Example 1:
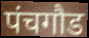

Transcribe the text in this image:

पंचगौड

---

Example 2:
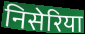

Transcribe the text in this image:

निसेरिया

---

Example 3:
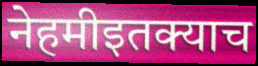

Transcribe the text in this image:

नेहमीइतक्याच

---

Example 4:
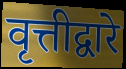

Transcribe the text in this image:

वृत्तीद्वारे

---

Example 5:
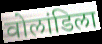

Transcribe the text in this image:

वोलांडिला